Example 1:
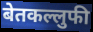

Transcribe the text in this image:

बेतकल्लुफी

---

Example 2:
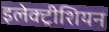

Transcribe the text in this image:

इलेक्ट्रीशियन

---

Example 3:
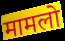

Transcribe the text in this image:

मामलो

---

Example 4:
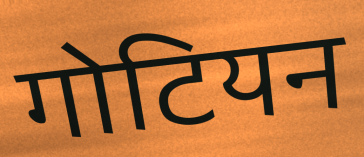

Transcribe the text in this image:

गोटियन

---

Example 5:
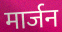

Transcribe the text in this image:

मार्जन